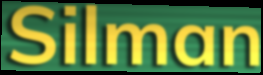
Silman